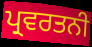
ਪ੍ਰਵਰਤਨੀ